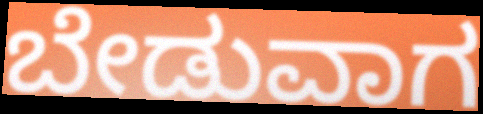
ಬೇಡುವಾಗ